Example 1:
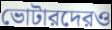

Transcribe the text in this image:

ভোটারদেরও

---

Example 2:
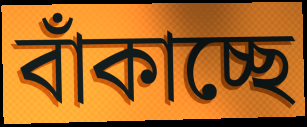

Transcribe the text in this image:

বাঁকাচ্ছে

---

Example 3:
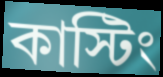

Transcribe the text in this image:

কাস্টিং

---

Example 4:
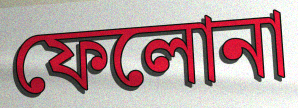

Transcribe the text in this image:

ফেলোনা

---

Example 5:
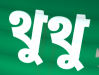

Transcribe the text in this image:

থুথু